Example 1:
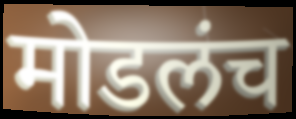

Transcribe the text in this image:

मोडलंच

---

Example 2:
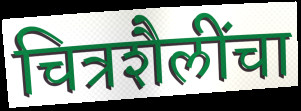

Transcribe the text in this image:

चित्रशैलींचा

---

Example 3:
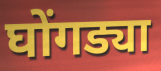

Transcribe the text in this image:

घोंगड्या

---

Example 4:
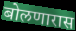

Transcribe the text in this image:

बोलणारास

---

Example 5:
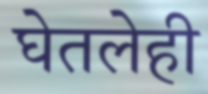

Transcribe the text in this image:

घेतलेही